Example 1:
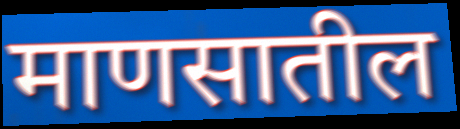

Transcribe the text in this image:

माणसातील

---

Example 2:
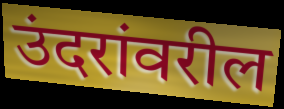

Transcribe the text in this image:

उंदरांवरील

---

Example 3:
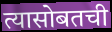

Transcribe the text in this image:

त्यासोबतची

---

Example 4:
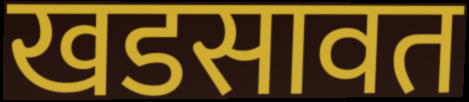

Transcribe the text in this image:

खडसावत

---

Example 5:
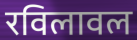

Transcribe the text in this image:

रविलावल